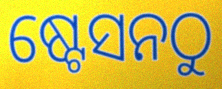
ଷ୍ଟେସନଠୁ